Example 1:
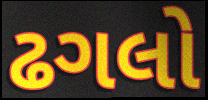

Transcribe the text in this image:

ઢગલો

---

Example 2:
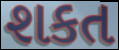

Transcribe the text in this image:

શકત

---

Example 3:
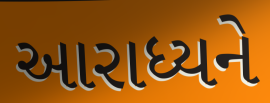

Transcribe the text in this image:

આરાધ્યને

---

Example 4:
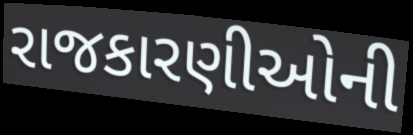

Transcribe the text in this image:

રાજકારણીઓની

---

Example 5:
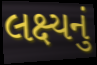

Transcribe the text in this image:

લક્ષ્યનું